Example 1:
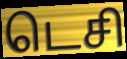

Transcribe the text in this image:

டெசி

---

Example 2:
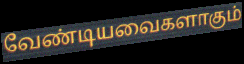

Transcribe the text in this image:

வேண்டியவைகளாகும்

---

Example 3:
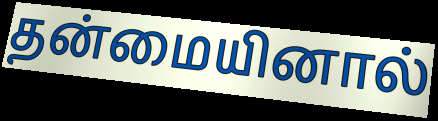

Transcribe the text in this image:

தன்மையினால்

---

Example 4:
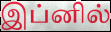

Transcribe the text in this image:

இப்னில்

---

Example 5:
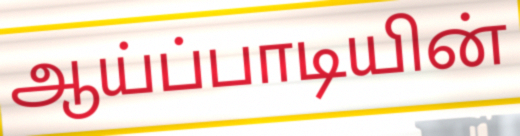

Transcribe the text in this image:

ஆய்ப்பாடியின்